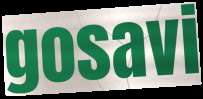
gosavi